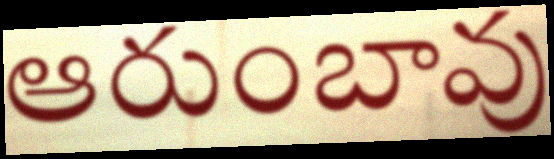
ఆరుంబావు